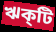
ঋক্‌টি